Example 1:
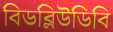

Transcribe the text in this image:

বিডব্লিউডিবি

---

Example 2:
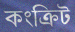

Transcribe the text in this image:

কংক্রিট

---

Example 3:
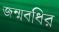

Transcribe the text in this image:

জন্মবধির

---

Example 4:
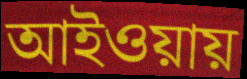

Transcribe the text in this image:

আইওয়ায়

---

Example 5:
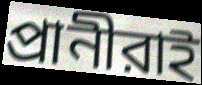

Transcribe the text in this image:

প্রানীরাই